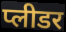
प्लीडर